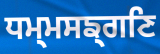
ਧਮ੍ਮਸਙ੍ਗਣਿ